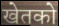
खेतको